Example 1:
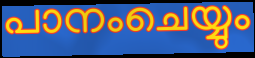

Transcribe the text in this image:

പാനംചെയ്യും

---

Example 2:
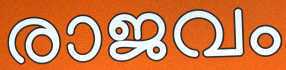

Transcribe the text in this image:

രാജവം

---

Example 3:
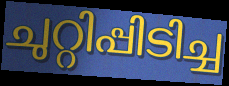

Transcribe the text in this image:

ചുറ്റിപ്പിടിച്ച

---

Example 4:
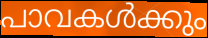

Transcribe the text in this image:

പാവകൾക്കും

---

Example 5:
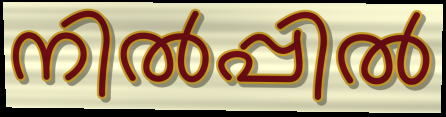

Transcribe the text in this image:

നിൽപ്പിൽ